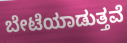
ಬೇಟೆಯಾಡುತ್ತವೆ